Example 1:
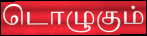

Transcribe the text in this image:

டொழுகும்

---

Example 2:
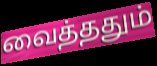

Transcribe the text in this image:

வைத்ததும்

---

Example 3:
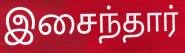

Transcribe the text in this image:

இசைந்தார்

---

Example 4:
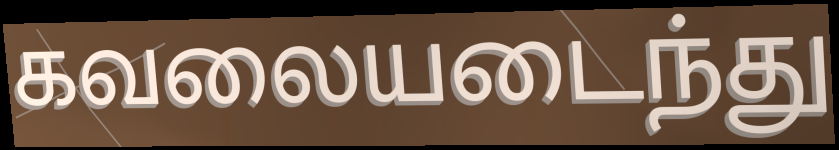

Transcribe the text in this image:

கவலையடைந்து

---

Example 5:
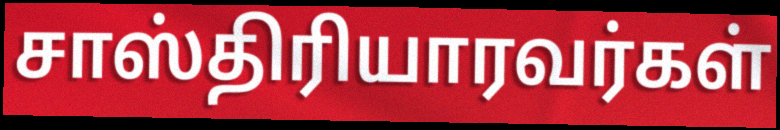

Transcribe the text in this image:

சாஸ்திரியாரவர்கள்